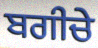
ਬਗੀਚੇ